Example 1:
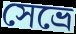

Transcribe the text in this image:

সেভ্রে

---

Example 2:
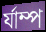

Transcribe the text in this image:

র্যাম্প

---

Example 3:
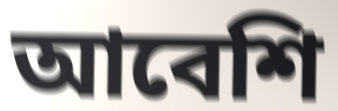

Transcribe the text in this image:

আবেশি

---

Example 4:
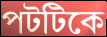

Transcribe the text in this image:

পটটিকে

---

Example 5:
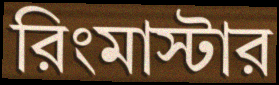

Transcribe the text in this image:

রিংমাস্টার